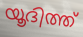
യൂദിത്ത്